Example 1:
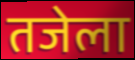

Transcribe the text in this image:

तजेला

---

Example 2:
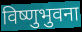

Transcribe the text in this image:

विष्णुभुवना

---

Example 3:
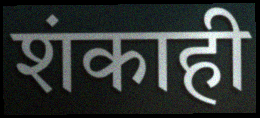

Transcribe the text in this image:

शंकाही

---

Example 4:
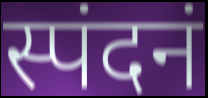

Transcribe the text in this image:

स्पंदनं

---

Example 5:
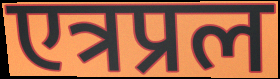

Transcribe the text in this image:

एत्रप्रल